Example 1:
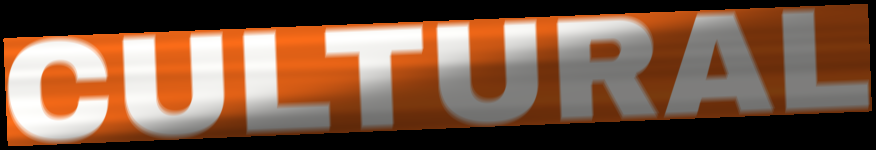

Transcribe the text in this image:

CULTURAL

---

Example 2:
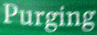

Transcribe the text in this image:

Purging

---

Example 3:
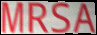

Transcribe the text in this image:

MRSA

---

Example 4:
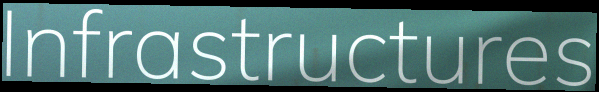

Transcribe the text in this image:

Infrastructures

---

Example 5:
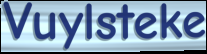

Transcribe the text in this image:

Vuylsteke